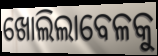
ଖୋଲିଲାବେଳକୁ